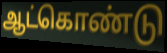
ஆட்கொண்டு